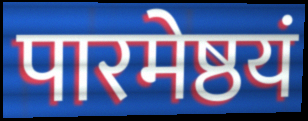
पारमेष्ठयं